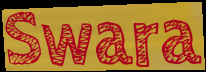
Swara